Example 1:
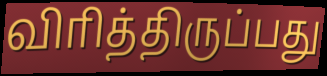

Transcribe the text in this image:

விரித்திருப்பது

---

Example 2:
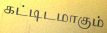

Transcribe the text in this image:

கட்டிடமாகும்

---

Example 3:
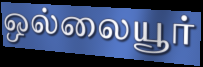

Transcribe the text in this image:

ஒல்லையூர்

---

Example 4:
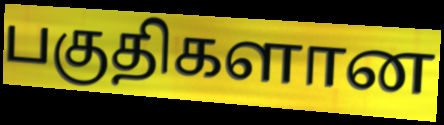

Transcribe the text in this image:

பகுதிகளான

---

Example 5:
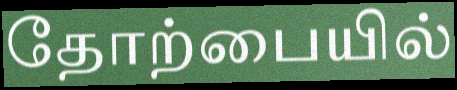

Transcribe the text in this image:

தோற்பையில்